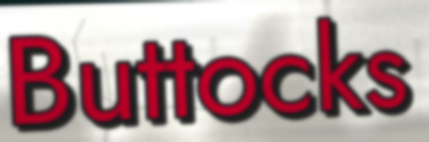
Buttocks